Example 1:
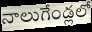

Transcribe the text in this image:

నాలుగేండ్లలో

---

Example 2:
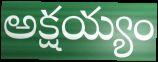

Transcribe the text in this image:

అక్షయ్యం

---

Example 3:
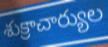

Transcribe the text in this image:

శుక్రాచార్యుల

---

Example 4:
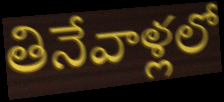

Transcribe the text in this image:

తినేవాళ్లలో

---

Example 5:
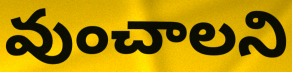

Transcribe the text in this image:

వుంచాలని